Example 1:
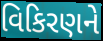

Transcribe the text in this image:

વિકિરણને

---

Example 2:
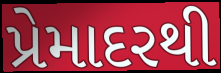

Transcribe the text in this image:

પ્રેમાદરથી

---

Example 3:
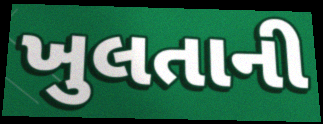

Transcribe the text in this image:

ખુલતાની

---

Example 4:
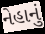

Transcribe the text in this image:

નેહાનું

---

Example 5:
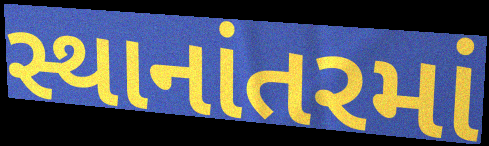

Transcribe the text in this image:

સ્થાનાંતરમાં